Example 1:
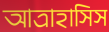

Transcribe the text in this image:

আত্রাহাসিস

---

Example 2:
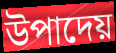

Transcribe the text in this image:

উপাদেয়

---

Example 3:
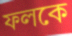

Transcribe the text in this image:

ফলকে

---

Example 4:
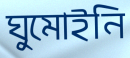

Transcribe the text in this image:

ঘুমোইনি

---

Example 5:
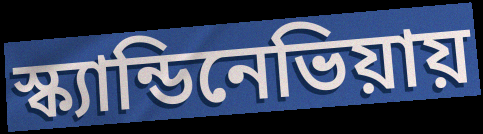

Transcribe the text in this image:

স্ক্যান্ডিনেভিয়ায়